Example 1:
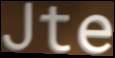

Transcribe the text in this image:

Jte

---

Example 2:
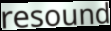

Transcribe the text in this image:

resound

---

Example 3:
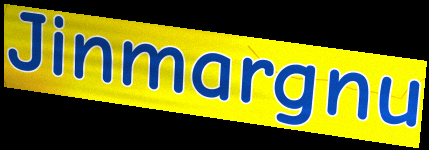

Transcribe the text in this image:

Jinmargnu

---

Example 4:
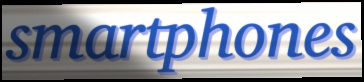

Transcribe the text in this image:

smartphones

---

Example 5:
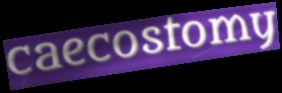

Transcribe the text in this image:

caecostomy